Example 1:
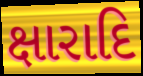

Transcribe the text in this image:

ક્ષારાદિ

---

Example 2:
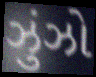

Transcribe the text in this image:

ઝુંઝો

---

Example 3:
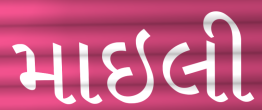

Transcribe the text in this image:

માઇલી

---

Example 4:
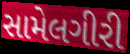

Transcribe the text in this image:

સામેલગીરી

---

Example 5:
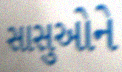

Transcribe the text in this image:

સાસુઓને